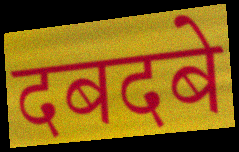
दबदबे